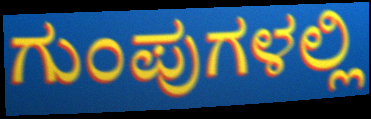
ಗುಂಪುಗಳಲ್ಲಿ